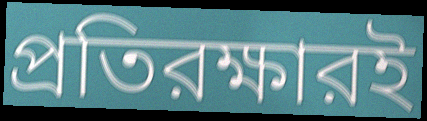
প্রতিরক্ষারই